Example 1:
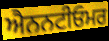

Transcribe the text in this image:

ਐਨਨਟੀਓਮਰ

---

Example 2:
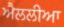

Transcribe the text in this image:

ਐਲਲੀਆ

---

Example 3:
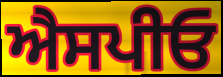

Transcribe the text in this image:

ਐਸਪੀਓ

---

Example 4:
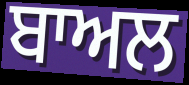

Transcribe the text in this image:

ਬਾਅਲ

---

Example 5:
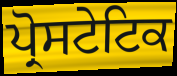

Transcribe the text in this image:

ਪ੍ਰੋਸਟੇਟਿਕ